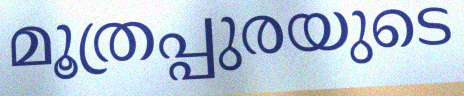
മൂത്രപ്പുരയുടെ